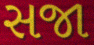
સજા